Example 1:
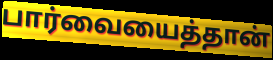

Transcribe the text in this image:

பார்வையைத்தான்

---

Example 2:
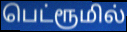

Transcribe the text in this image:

பெட்ரூமில்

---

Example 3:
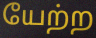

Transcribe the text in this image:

யேற்ற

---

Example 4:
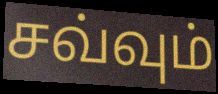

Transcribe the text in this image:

சவ்வும்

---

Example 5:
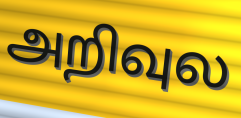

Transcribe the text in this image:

அறிவுல